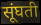
सूंघती